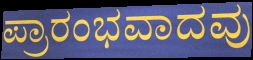
ಪ್ರಾರಂಭವಾದವು